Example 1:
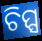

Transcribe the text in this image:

ଚିପ୍ସ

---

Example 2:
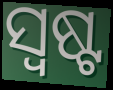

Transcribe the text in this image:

ସ୍ୱଷ୍ଟ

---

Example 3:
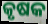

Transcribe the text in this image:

କୃଷକ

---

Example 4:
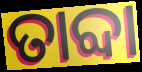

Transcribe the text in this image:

ତାବ୍ଦା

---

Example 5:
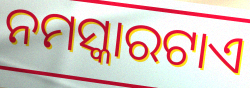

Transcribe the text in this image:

ନମସ୍କାରଟାଏ